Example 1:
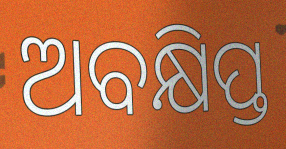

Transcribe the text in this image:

ଅବକ୍ଷିପ୍ତ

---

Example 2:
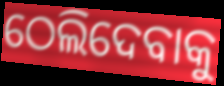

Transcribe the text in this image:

ଠେଲିଦେବାକୁ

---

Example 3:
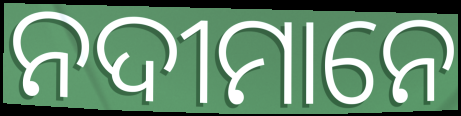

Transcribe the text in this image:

ନଦୀମାନେ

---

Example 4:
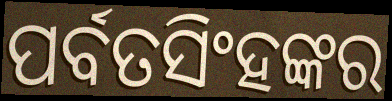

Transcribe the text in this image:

ପର୍ବତସିଂହଙ୍କର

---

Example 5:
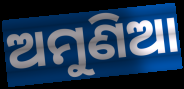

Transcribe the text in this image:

ଅମୁଣିଆ